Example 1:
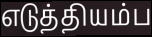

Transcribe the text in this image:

எடுத்தியம்ப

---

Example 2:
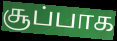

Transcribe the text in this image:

சூப்பாக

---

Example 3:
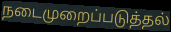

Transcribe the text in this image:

நடைமுறைப்படுத்தல்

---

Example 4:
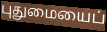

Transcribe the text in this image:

புதுமையைப்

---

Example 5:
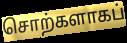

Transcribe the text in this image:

சொற்களாகப்